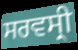
ਸਰਵਸ੍ਰੀ